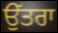
ਉੱਤਰਾ